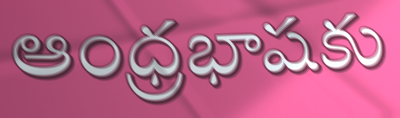
ఆంధ్రభాషకు